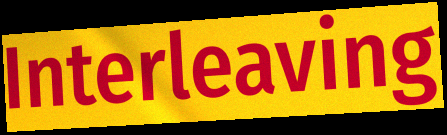
Interleaving